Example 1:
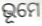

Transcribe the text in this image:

ଭୂମେ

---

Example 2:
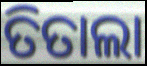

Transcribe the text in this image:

ତିତାଲା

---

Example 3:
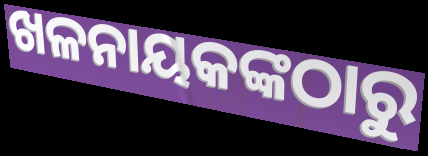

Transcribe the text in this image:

ଖଳନାୟକଙ୍କଠାରୁ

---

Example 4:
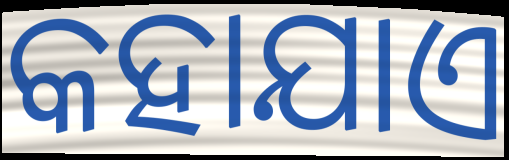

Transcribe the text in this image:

କହାଯାଏ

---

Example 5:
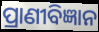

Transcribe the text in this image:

ପ୍ରାଣୀବିଜ୍ଞାନ